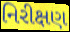
નિરીક્ષણ